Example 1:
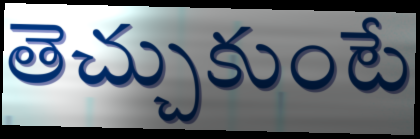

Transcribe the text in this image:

తెచ్చుకుంటే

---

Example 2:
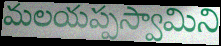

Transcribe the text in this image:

మలయప్పస్వామిని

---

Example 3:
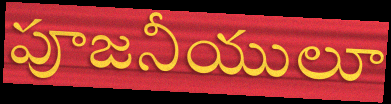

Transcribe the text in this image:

పూజనీయులూ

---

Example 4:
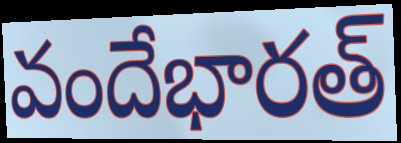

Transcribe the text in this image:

వందేభారత్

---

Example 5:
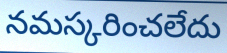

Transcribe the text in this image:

నమస్కరించలేదు